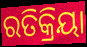
ରତିକ୍ରିୟା